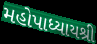
મહોપાધ્યાયશ્રી